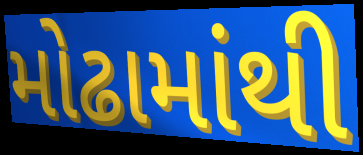
મોઢામાંથી